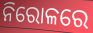
ନିରୋଳରେ